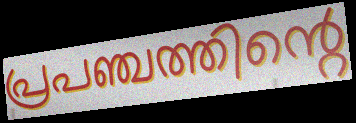
പ്രപഞ്ചത്തിന്റെ